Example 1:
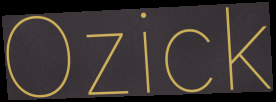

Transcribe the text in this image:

Ozick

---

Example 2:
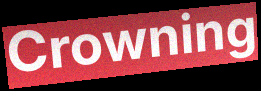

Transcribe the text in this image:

Crowning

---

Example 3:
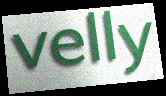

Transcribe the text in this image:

velly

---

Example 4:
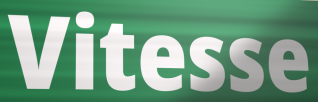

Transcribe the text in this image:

Vitesse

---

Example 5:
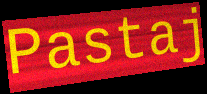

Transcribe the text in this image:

Pastaj